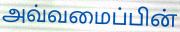
அவ்வமைப்பின்